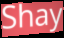
Shay